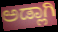
ಅಡ್ಲಾಗಿ